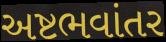
અષ્ટભવાંતર